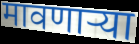
मावणाऱ्या